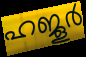
ഹജൂർ